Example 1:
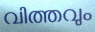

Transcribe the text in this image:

വിത്തവും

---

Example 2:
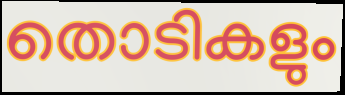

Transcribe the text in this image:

തൊടികളും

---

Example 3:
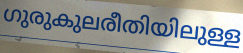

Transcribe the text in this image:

ഗുരുകുലരീതിയിലുള്ള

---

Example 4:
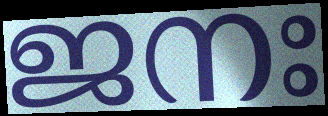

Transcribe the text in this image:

ജനഃ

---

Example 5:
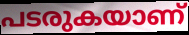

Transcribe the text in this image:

പടരുകയാണ്